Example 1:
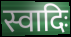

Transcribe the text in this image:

स्वादिः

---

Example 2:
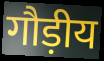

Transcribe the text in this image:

गौड़ीय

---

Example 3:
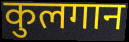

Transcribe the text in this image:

कुलगान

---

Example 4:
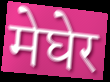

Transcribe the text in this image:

मेघेर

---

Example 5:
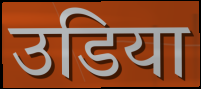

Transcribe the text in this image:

उडिया